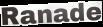
Ranade